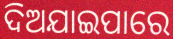
ଦିଅଯାଇପାରେ